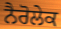
ਨੈਰੋਲੇਕ